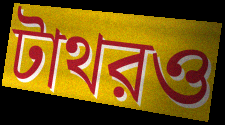
টাথরও